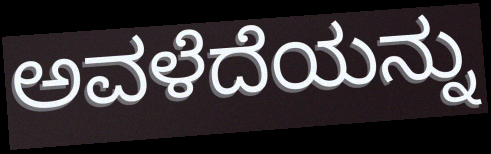
ಅವಳೆದೆಯನ್ನು